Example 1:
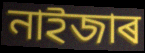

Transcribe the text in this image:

নাইজাৰ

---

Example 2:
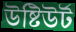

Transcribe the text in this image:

উষ্টিউৰ্ট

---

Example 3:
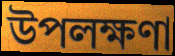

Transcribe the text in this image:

উপলক্ষণা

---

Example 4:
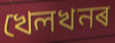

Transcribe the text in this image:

খেলখনৰ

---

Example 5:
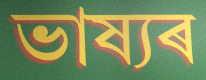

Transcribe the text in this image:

ভাষ্যৰ